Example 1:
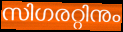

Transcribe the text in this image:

സിഗരറ്റിനും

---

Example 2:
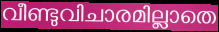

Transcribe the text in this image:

വീണ്ടുവിചാരമില്ലാതെ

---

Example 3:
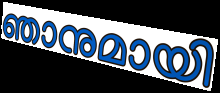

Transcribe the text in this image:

ഞാനുമായി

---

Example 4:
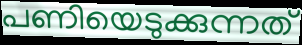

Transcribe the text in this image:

പണിയെടുക്കുന്നത്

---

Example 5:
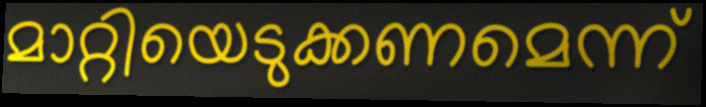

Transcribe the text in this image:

മാറ്റിയെടുക്കണമെന്ന്